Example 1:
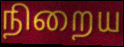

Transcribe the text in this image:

நிறைய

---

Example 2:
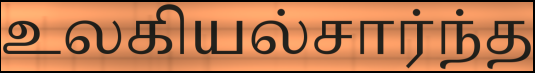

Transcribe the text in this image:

உலகியல்சார்ந்த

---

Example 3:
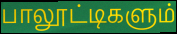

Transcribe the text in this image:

பாலூட்டிகளும்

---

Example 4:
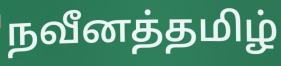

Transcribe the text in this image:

நவீனத்தமிழ்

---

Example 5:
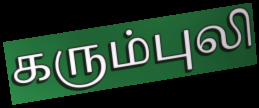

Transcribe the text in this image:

கரும்புலி